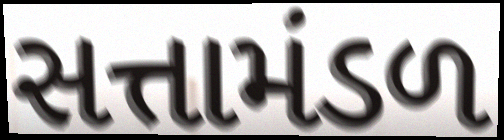
સત્તામંડળ